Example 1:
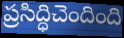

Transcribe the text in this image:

ప్రసిద్ధిచెందింది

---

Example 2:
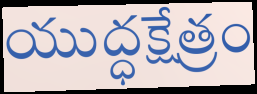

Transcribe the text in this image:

యుద్ధక్షేత్రం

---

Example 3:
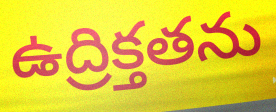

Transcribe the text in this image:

ఉద్రిక్తతను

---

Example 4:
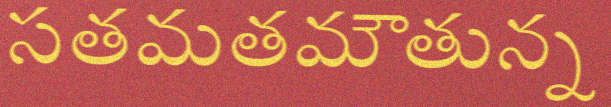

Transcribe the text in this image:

సతమతమౌతున్న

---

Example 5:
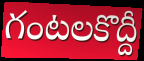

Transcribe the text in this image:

గంటలకొద్దీ